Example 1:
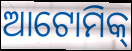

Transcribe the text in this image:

ଆଟୋମିକ୍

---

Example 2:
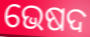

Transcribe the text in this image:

ଭେଷଦ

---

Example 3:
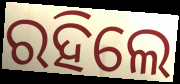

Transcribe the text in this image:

ରହିଲେ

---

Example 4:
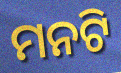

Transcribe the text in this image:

ମନଟି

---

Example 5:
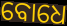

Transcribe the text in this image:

ବୋଧେ